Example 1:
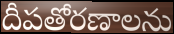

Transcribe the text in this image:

దీపతోరణాలను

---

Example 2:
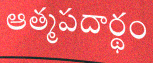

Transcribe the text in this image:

ఆత్మపదార్థం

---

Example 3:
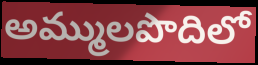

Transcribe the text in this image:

అమ్ములపొదిలో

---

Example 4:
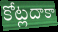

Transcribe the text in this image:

కోట్లదాకా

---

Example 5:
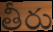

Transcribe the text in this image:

తీరు